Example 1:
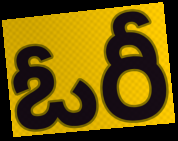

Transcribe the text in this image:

ఓరీ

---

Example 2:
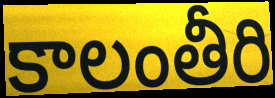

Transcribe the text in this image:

కాలంతీరి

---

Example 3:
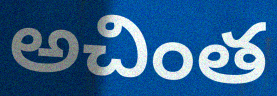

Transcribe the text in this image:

అచింత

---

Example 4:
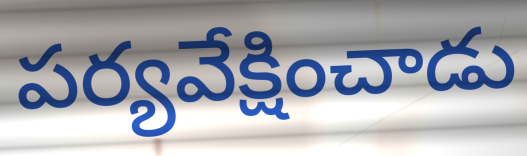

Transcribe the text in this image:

పర్యవేక్షించాడు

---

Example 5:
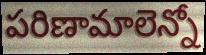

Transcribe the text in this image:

పరిణామాలెన్నో